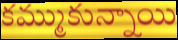
కమ్ముకున్నాయి